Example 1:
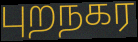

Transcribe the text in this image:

புறநகர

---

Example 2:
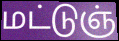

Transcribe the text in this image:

மட்டுஞ்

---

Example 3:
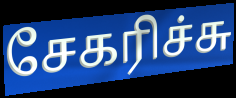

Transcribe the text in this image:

சேகரிச்சு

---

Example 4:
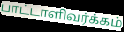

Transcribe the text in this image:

பாட்டாளிவர்க்கம்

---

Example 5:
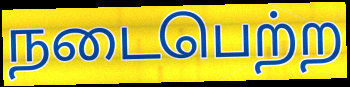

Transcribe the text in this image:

நடைபெற்ற